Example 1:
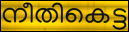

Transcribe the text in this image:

നീതികെട്ട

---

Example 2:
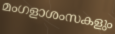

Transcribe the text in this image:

മംഗളാശംസകളും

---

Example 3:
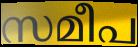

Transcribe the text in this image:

സമീപ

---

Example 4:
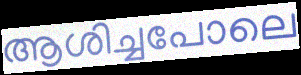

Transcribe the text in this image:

ആശിച്ചപോലെ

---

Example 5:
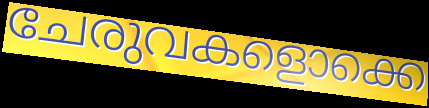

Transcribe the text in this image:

ചേരുവകളൊക്കെ